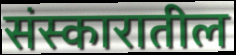
संस्कारातील